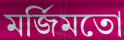
মর্জিমতো